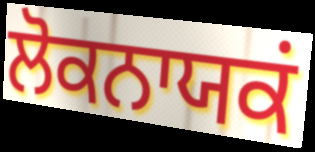
ਲੋਕਨਾਯਕਂ